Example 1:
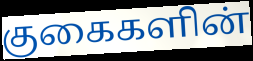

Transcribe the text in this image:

குகைகளின்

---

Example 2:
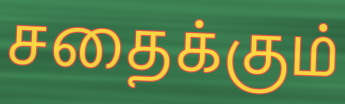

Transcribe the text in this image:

சதைக்கும்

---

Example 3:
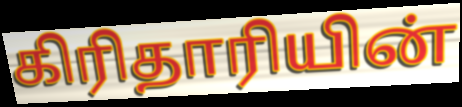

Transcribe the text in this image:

கிரிதாரியின்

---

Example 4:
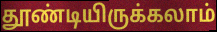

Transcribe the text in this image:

தூண்டியிருக்கலாம்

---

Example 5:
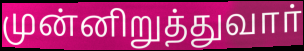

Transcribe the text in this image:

முன்னிறுத்துவார்